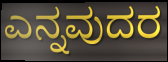
ಎನ್ನವುದರ